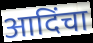
आदिंचा